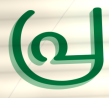
പ്ര